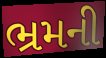
ભ્રમની